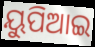
ୟୁପିଆଇ